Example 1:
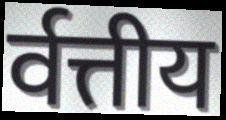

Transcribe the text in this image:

र्वत्तीय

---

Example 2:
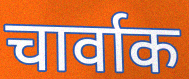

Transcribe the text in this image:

चार्वाक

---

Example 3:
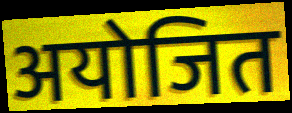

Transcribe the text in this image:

अयोजित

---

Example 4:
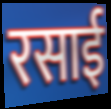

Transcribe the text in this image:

रसाई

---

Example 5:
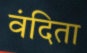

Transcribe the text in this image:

वंदिता